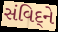
સંવિદ્‌ને